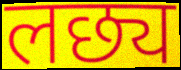
लछ्य